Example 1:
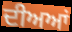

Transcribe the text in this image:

ਦੀਅਆਂ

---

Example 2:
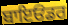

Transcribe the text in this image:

ਬਾਇਓਂਡਰ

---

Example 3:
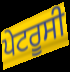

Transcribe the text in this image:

ਪੇਟਰੂਸੀ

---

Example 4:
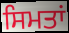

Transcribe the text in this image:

ਸਿਮਤਾਂ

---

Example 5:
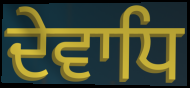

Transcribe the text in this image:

ਦੇਵਾਧਿ